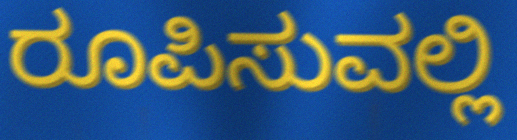
ರೂಪಿಸುವಲ್ಲಿ